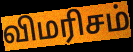
விமரிசம்